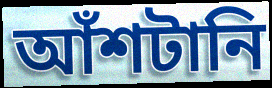
আঁশটানি